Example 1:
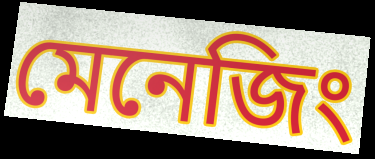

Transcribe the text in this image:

মেনেজিং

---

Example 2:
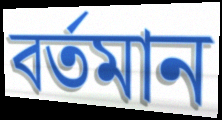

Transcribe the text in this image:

বৰ্তমান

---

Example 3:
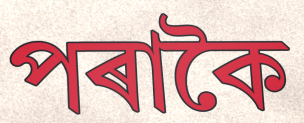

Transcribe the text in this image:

পৰাকৈ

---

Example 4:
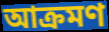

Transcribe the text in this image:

আক্ৰমণ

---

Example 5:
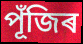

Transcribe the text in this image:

পূঁজিৰ